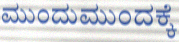
ಮುಂದುಮುಂದಕ್ಕೆ